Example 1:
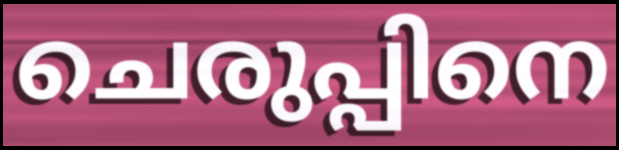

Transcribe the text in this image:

ചെരുപ്പിനെ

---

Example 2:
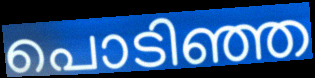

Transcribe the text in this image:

പൊടിഞ്ഞ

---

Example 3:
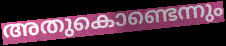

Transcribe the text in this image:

അതുകൊണ്ടെന്നും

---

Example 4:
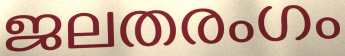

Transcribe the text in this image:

ജലതരംഗം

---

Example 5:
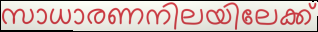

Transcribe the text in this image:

സാധാരണനിലയിലേക്ക്